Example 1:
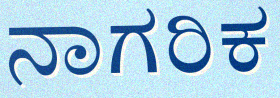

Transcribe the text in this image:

ನಾಗರಿಕ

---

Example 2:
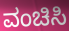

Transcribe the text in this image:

ವಂಚಿಸಿ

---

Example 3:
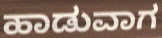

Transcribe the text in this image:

ಹಾಡುವಾಗ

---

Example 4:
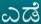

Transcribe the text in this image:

ಎಡೆ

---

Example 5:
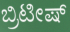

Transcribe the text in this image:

ಬ್ರಿಟೀಷ್